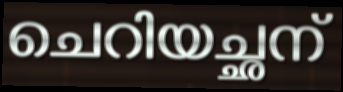
ചെറിയച്ഛന്